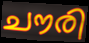
ചൗരി